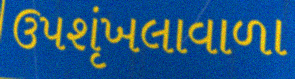
ઉપશૃંખલાવાળા